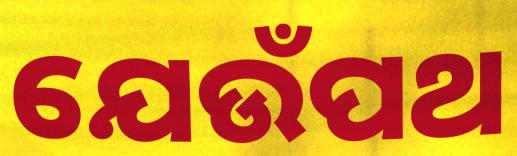
ଯେଉଁପଥ